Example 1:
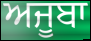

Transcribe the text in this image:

ਅਜੂਬਾ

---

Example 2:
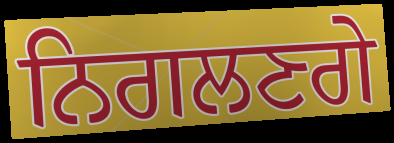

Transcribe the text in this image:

ਨਿਗਲਣਗੇ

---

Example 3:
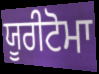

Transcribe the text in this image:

ਯੂਰੀਟੋਮਾ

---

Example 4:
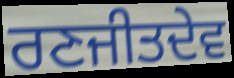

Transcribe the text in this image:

ਰਣਜੀਤਦੇਵ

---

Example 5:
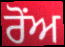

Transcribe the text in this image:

ਰੋਂਅ